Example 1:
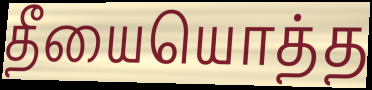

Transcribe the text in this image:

தீயையொத்த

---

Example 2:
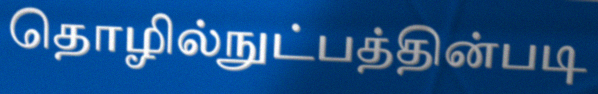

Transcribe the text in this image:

தொழில்நுட்பத்தின்படி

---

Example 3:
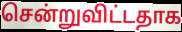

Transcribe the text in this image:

சென்றுவிட்டதாக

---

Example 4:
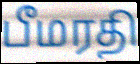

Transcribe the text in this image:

பீமரதி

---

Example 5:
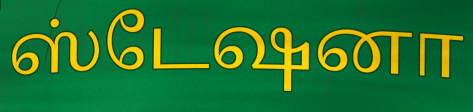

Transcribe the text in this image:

ஸ்டேஷனா